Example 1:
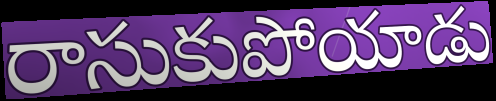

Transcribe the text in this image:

రాసుకుపోయాడు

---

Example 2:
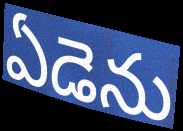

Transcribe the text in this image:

ఏడెను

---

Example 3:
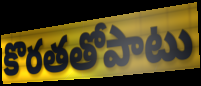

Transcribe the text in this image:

కొరతతోపాటు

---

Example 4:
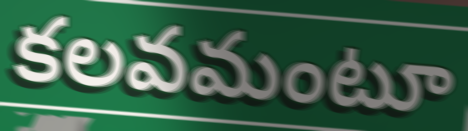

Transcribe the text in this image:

కలవమంటూ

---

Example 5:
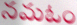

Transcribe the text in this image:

నమఓం